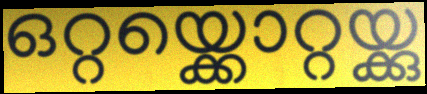
ഒറ്റയ്ക്കൊറ്റയ്ക്കു